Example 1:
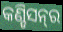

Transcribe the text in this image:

କଣ୍ଡିସନ୍‌ର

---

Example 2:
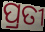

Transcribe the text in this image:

ପ୍ରତୀ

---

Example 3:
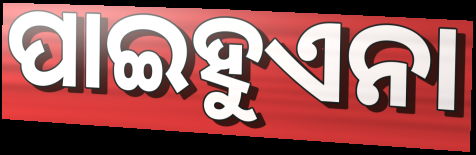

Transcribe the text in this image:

ପାଇହୁଏନା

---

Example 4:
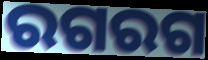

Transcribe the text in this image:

ରଗରଗ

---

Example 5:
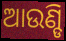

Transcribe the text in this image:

ଆଉଣ୍ଡି